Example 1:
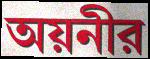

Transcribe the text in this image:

অয়নীর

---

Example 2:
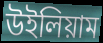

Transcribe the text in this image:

উইলিয়াম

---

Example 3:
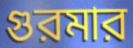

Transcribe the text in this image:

গুরমার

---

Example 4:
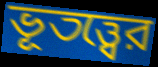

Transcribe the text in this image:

ভূতত্ত্বের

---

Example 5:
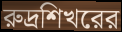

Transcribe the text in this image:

রুদ্রশিখরের